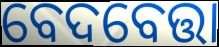
ବେଦବେତ୍ତା